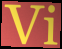
Vi